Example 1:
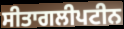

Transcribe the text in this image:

ਸੀਤਾਗਲੀਪਟੀਨ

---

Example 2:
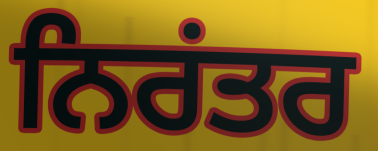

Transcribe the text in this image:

ਨਿਰਂਤਰ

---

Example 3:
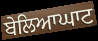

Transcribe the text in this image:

ਬੇਲਿਆਘਾਟ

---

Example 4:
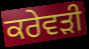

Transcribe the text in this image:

ਕਰੇਵੜੀ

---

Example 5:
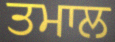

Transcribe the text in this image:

ਤਮਾਲ